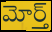
మోర్త్